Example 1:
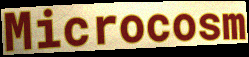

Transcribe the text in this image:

Microcosm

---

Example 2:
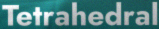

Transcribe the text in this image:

Tetrahedral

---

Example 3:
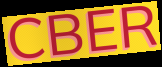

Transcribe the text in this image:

CBER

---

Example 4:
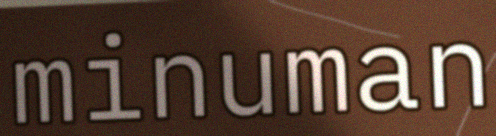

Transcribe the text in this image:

minuman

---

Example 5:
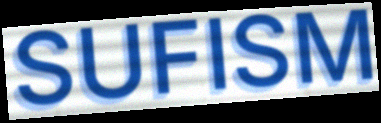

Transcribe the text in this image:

SUFISM